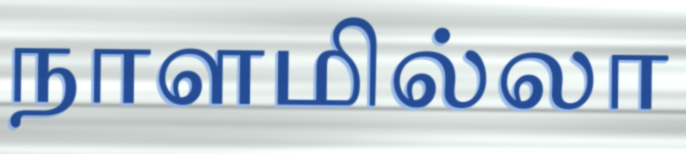
நாளமில்லா